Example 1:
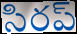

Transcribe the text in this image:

సిరప్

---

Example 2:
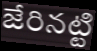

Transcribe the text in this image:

జేరినట్టి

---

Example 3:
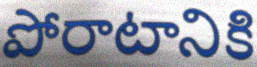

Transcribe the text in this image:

పోరాటానికి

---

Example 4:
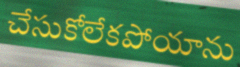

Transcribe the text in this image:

చేసుకోలేకపోయాను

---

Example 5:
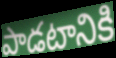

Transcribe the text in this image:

పాడటానికి